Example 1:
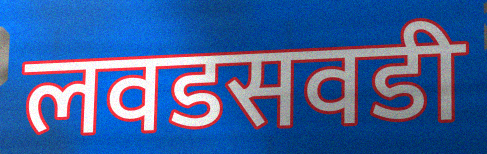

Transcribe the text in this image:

लवडसवडी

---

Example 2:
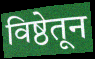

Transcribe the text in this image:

विष्ठेतून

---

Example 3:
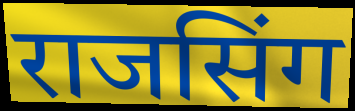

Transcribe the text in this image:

राजसिंग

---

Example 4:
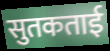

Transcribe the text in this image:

सुतकताई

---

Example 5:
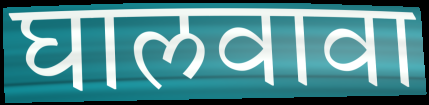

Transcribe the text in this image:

घालवावा